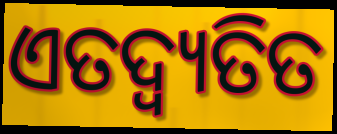
ଏତଦ୍ବ୍ୟତିତ